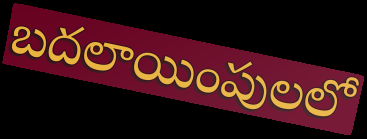
బదలాయింపులలో